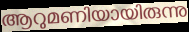
ആറുമണിയായിരുന്നു